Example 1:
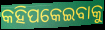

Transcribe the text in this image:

କହିପକେଇବାକୁ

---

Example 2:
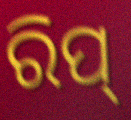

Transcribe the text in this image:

ରିପ୍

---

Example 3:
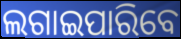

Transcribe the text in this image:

ଲଗାଇପାରିବେ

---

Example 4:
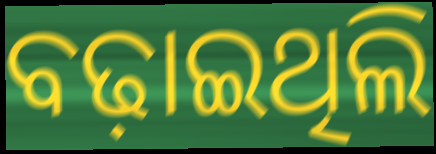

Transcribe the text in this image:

ବଢ଼ାଇଥିଲି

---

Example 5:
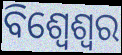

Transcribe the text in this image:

ବିଶ୍ୱେଶ୍ୱର